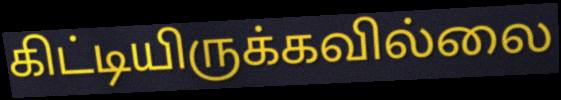
கிட்டியிருக்கவில்லை